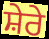
ਸ਼ੇਰੇ